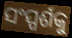
ସଂସ୍ପର୍ଶକୁ